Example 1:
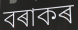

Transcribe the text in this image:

বৰাকৰ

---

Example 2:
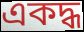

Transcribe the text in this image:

একদ্ধ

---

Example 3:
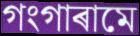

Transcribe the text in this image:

গংগাৰামে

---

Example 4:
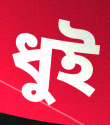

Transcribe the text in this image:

ধুই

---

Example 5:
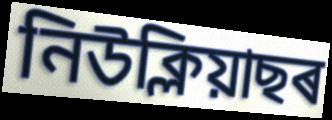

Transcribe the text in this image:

নিউক্লিয়াছৰ